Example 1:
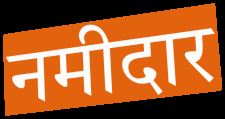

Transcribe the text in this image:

नमीदार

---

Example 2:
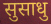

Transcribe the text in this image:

सुसाधु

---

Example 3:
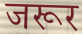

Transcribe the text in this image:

जरूर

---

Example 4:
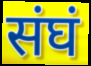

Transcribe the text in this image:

संघं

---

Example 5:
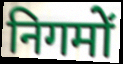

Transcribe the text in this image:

निगमों